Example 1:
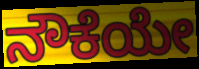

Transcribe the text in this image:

ನೌಕೆಯೇ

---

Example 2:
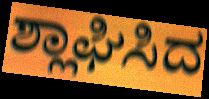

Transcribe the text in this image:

ಶ್ಲಾಘಿಸಿದ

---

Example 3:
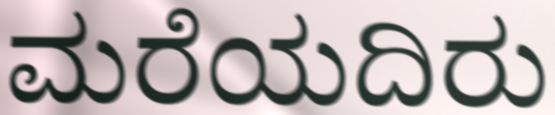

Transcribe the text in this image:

ಮರೆಯದಿರು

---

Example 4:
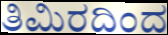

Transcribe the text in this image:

ತಿಮಿರದಿಂದ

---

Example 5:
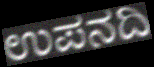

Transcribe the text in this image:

ಉಪನದಿ